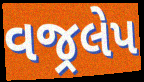
વજ્રલેપ